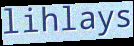
lihlays